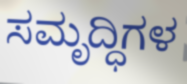
ಸಮೃದ್ಧಿಗಳ